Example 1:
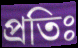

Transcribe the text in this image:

প্রতিঃ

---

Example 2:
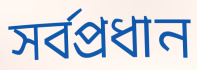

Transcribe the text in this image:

সর্বপ্রধান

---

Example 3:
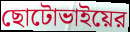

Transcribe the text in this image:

ছোটোভাইয়ের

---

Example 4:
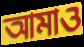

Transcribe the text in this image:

আমাও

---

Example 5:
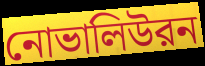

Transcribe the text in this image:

নোভালিউরন